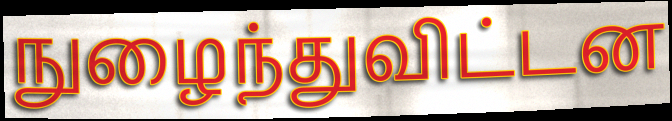
நுழைந்துவிட்டன